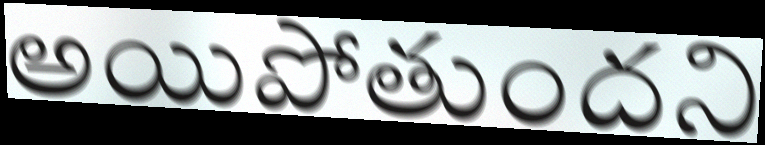
అయిపోతుందని